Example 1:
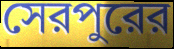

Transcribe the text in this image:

সেরপুরের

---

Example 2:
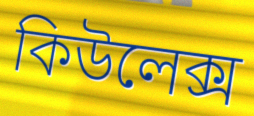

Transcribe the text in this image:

কিউলেক্স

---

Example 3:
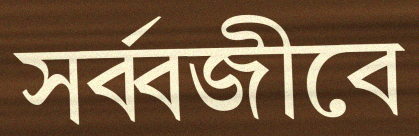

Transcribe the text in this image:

সর্ব্বজীবে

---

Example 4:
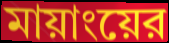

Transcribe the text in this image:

মায়াংয়ের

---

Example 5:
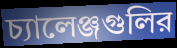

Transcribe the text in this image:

চ্যালেঞ্জগুলির